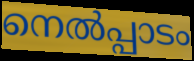
നെൽപ്പാടം